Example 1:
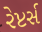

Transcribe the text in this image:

રેપ્ટર્સ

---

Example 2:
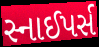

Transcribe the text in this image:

સ્નાઈપર્સ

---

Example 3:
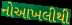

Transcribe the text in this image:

નોઆખલીથી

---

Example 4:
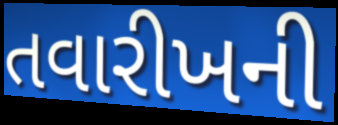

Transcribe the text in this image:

તવારીખની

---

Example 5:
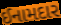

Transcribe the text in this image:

ઈનામદાર